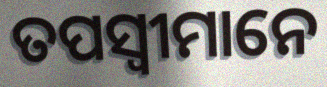
ତପସ୍ୱୀମାନେ